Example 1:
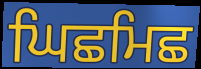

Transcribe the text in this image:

ਘਿਛਮਿਛ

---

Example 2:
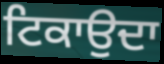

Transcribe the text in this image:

ਟਿਕਾਉਦਾ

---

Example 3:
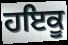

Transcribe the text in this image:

ਹਇਕੂ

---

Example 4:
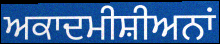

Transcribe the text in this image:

ਅਕਾਦਮੀਸ਼ੀਅਨਾਂ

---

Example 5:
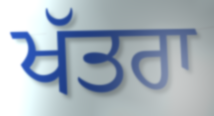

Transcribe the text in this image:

ਖੱਤਰਾ